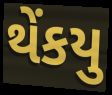
થેંકયુ